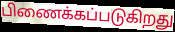
பிணைக்கப்படுகிறது